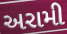
અરામી